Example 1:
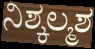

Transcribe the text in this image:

ನಿಶ್ಕಲ್ಮಶ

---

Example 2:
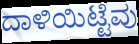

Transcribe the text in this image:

ದಾಳಿಯಿಟ್ಟೆವು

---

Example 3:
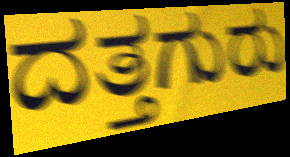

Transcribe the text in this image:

ದತ್ತಗುರು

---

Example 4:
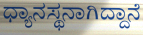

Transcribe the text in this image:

ಧ್ಯಾನಸ್ಥನಾಗಿದ್ದಾನೆ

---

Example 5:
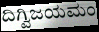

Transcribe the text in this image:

ದಿಗ್ವಿಜಯಮಂ